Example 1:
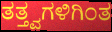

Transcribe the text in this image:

ತತ್ತ್ವಗಳಿಗಿಂತ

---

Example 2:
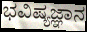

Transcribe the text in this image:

ಭವಿಷ್ಯಜ್ಞಾನ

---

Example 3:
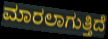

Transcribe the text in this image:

ಮಾರಲಾಗುತ್ತಿದೆ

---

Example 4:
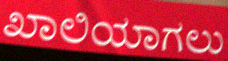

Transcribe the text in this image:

ಖಾಲಿಯಾಗಲು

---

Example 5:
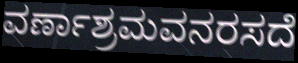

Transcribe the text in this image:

ವರ್ಣಾಶ್ರಮವನರಸದೆ